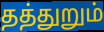
தத்துறும்